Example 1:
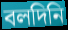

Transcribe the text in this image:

বলদিনি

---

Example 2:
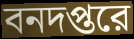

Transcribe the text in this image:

বনদপ্তরে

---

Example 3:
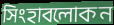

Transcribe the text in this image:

সিংহাবলোকন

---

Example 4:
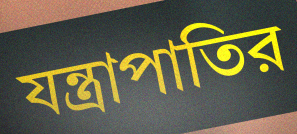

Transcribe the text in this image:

যন্ত্রাপাতির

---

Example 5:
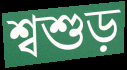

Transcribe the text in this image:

শ্বশুড়